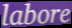
labore